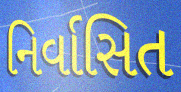
નિર્વાસિત